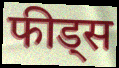
फीड्स